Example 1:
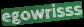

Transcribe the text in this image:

egowrisss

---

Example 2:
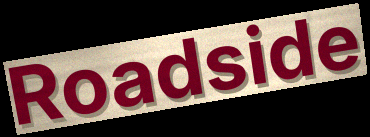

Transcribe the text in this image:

Roadside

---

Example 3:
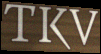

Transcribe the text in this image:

TKV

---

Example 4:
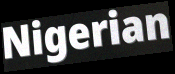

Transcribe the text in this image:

Nigerian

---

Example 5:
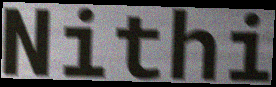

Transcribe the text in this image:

Nithi